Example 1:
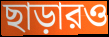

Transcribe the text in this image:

ছাড়ারও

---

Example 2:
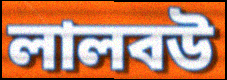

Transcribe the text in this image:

লালবউ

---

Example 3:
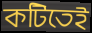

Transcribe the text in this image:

কটিতেই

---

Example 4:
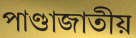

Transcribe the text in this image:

পাণ্ডাজাতীয়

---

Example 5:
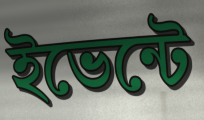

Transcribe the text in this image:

ইভেন্টে